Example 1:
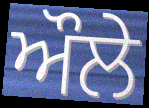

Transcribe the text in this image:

ਔਲੇ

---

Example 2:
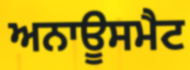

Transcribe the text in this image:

ਅਨਾਊਸਮੈਟ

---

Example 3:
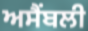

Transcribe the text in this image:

ਅਸੈਂਬਲੀ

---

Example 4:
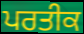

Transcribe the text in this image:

ਪਰਤੀਕ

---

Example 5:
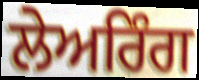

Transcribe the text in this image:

ਲੇਅਰਿੰਗ